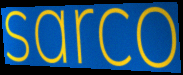
sarco